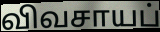
விவசாயப்